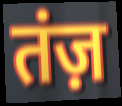
तंज़